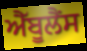
ਐੱਬੂਲੈਂਸ